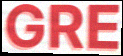
GRE